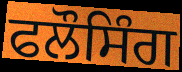
ਫਲੌਸਿੰਗ